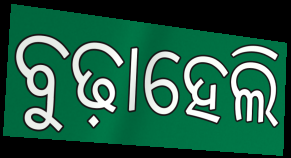
ବୁଢ଼ାହେଲି